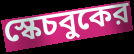
স্কেচবুকের